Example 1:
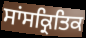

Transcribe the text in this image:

ਸਾਂਸਕ੍ਰਿਤਿਕ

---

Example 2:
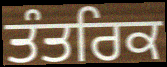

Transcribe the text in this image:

ਤੰਤਰਿਕ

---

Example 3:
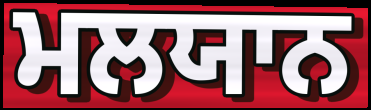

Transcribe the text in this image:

ਮਲਯਾਨ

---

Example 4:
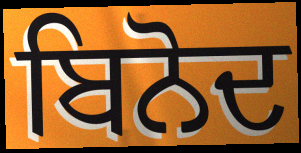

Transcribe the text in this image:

ਬਿਨੋਦ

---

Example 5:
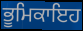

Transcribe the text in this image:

ਭੂਮਿਕਾਇਹ